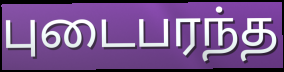
புடைபரந்த